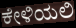
ಕೇಳಿಯಲಿ